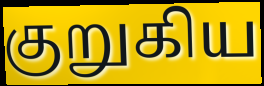
குறுகிய